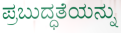
ಪ್ರಬುದ್ಧತೆಯನ್ನು